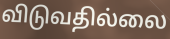
விடுவதில்லை